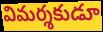
విమర్శకుడూ